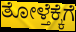
ತೋಳ್ತೆಕ್ಕೆಗೆ